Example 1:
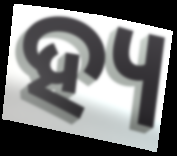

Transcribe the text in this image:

ହ୍ୟ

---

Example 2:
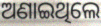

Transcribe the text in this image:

ଅଣାଇଥିଲେ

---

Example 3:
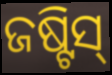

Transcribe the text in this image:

ଜଷ୍ଟିସ୍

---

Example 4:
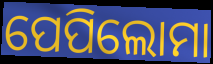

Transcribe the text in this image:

ପେପିଲୋମା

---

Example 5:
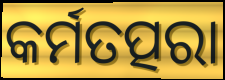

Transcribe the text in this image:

କର୍ମତତ୍ପରା